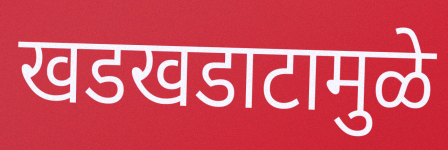
खडखडाटामुळे